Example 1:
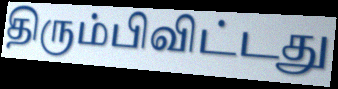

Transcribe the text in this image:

திரும்பிவிட்டது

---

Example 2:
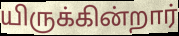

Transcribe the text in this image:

யிருக்கின்றார்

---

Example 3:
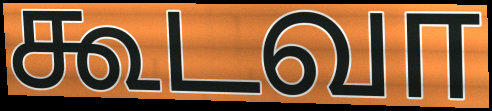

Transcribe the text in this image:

கூடவா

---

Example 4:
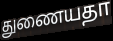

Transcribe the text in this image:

துணையதா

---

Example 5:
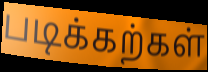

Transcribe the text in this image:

படிக்கற்கள்